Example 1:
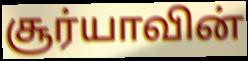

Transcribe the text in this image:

சூர்யாவின்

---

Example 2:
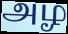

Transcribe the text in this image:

அழ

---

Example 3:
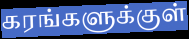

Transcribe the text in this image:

கரங்களுக்குள்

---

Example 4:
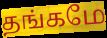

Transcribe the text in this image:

தங்கமே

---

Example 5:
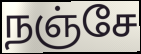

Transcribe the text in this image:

நஞ்சே